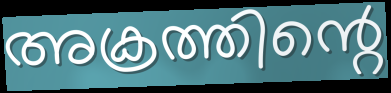
അക്രത്തിന്റെ